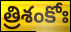
త్రిశంకోః